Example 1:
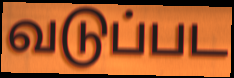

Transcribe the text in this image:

வடுப்பட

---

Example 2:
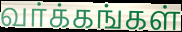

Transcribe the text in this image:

வர்க்கங்கள்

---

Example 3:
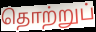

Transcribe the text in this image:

தொற்றுப்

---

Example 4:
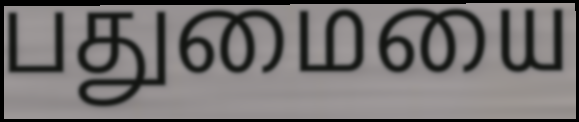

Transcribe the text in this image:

பதுமையை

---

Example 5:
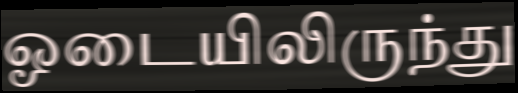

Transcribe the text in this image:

ஓடையிலிருந்து